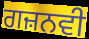
ਗਜ਼ਨਵੀ